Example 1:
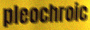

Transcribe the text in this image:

pleochroic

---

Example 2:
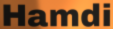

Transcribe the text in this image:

Hamdi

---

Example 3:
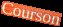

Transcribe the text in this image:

Courson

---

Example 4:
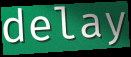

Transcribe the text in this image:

delay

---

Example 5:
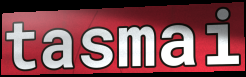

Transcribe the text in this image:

tasmai